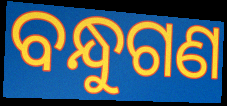
ବନ୍ଧୁଗଣ